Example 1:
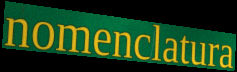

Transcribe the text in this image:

nomenclatura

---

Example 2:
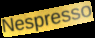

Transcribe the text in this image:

Nespresso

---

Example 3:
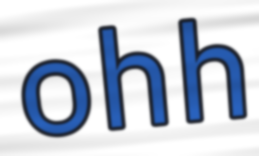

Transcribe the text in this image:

ohh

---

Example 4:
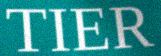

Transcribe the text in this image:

TIER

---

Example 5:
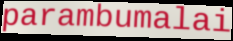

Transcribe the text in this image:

parambumalai